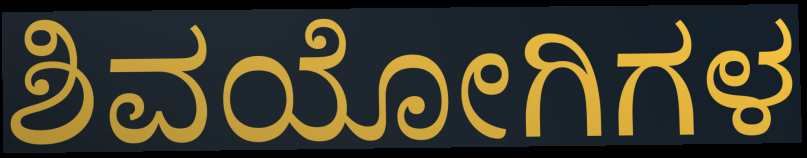
ಶಿವಯೋಗಿಗಳ